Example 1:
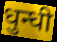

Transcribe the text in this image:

धुन्धी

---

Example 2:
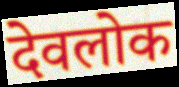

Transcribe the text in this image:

देवलोक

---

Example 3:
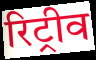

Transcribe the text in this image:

रिट्रीव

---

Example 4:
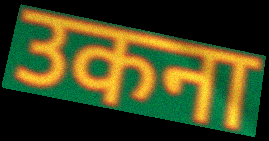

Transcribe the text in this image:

उकना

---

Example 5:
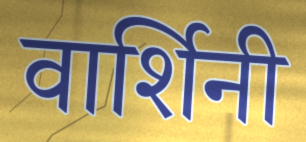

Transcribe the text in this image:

वार्शिनी